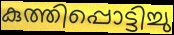
കുത്തിപ്പൊട്ടിച്ചു